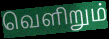
வெளிறும்